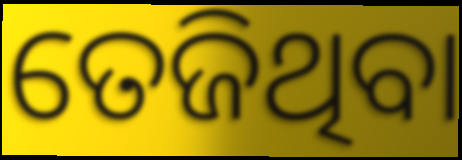
ତେଜିଥିବା